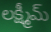
లక్ష్మీమ్